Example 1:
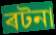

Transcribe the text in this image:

ৰটনা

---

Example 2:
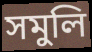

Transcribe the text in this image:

সমুলি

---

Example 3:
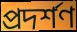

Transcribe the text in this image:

প্ৰদৰ্শণ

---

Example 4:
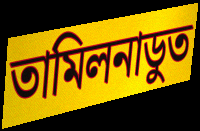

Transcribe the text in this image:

তামিলনাডুত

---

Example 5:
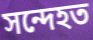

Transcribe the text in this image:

সন্দেহত